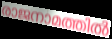
രാജനാമത്തിൽ